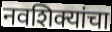
नवशिक्यांचा